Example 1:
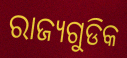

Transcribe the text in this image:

ରାଜ୍ୟଗୁଡିକ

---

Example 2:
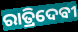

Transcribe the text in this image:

ରାତ୍ରିଦେବୀ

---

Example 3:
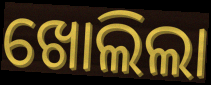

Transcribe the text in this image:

ଖୋଲିଲା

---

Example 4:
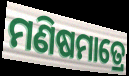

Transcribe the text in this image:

ମଣିଷମାତ୍ରେ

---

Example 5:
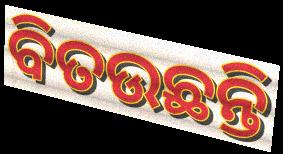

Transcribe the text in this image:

ବିତଉଛନ୍ତି